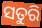
ସତୁରି